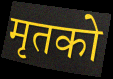
मृतको